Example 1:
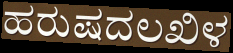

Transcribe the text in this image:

ಹರುಷದಲಖಿಳ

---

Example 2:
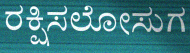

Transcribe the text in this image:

ರಕ್ಷಿಸಲೋಸುಗ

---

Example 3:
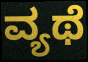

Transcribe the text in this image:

ವ್ಯಥೆ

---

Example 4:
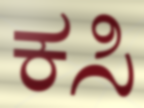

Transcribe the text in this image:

ಕಸಿ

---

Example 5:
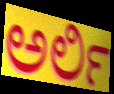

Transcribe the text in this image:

ಅರ್ಲಿ